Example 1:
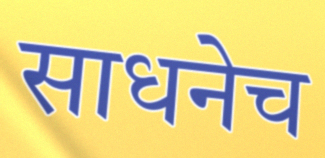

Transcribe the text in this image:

साधनेच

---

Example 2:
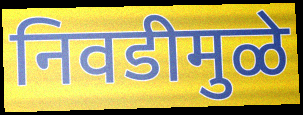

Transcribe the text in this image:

निवडीमुळे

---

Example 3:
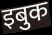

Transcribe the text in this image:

इबुक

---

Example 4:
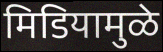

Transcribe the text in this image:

मिडियामुळे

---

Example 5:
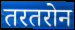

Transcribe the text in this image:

तरतरोन